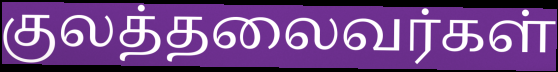
குலத்தலைவர்கள்